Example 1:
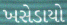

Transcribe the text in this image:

ખસેડાયો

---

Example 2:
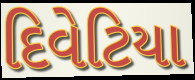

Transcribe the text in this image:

દિવેટિયા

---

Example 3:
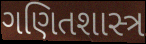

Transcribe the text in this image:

ગણિતશાસ્ત્ર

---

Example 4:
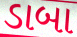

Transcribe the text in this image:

ડાબા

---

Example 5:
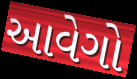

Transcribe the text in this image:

આવેગો